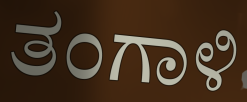
ತಂಗಾಳಿ